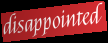
disappointed